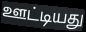
ஊட்டியது